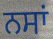
ਨਸਾਂ